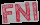
FNI